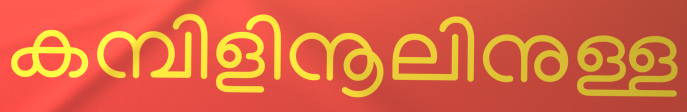
കമ്പിളിനൂലിനുള്ള